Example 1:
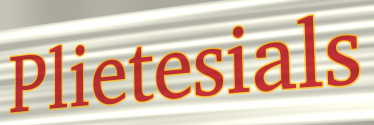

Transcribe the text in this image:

Plietesials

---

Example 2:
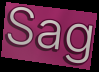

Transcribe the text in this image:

Sag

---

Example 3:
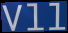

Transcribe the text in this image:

Vll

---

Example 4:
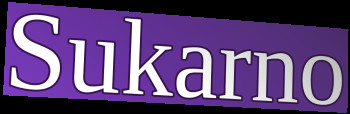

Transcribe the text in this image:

Sukarno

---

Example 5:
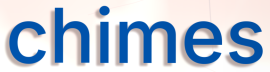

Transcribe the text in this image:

chimes